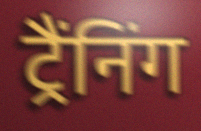
ट्रैंनिंग